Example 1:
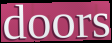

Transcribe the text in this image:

doors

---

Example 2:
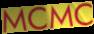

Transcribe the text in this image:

MCMC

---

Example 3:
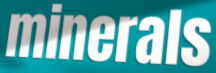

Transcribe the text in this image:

minerals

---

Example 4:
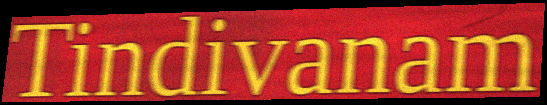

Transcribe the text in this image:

Tindivanam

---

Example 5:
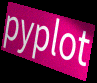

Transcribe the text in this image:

pyplot